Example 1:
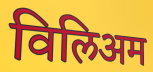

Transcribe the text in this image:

विलिअम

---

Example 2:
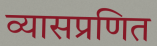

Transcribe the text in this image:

व्यासप्रणित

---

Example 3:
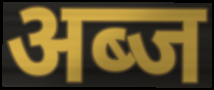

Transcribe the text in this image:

अब्ज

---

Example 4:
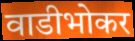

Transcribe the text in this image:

वाडीभोकर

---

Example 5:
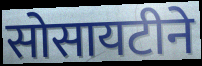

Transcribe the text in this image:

सोसायटीने